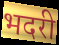
भदरी